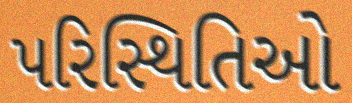
પરિસ્થિતિઓ